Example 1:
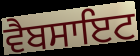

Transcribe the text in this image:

ਵੈਬਸਾਇਟ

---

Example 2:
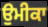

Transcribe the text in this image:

ਉਮੀਕਾ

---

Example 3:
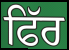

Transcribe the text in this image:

ਫਿੱਰ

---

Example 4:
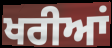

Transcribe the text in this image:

ਖਰੀਆਂ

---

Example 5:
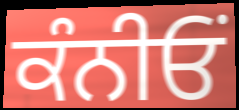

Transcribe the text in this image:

ਕੰਨੀਓਂ